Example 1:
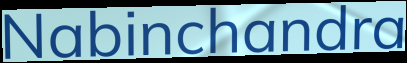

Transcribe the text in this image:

Nabinchandra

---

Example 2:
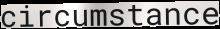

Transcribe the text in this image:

circumstance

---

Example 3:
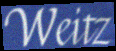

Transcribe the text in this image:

Weitz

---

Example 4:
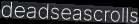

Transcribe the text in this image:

deadseascrolls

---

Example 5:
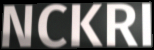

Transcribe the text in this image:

NCKRI